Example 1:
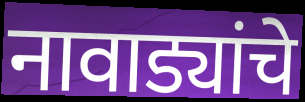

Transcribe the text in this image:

नावाड्यांचे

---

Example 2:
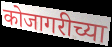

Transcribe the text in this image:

कोजागरीच्या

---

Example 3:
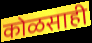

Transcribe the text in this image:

कोळसाही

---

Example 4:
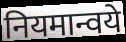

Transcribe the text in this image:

नियमान्वये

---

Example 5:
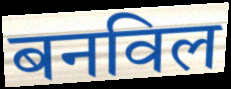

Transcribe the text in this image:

बनविल